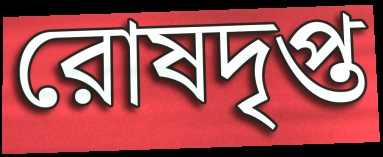
রোষদৃপ্ত